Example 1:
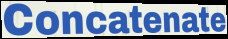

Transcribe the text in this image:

Concatenate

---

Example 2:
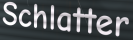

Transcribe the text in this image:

Schlatter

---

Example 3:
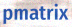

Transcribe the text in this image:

pmatrix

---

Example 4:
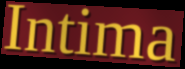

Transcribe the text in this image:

Intima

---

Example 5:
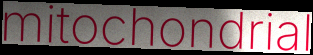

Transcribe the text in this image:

mitochondrial